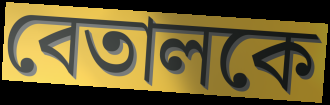
বেতালকে